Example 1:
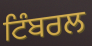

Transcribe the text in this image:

ਟਿੰਬਰਲ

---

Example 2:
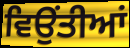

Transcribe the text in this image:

ਵਿਉਂਤੀਆਂ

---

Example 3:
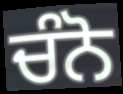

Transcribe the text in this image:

ਚੰਨੋ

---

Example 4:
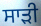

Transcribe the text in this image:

ਸਾੜੀ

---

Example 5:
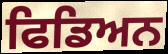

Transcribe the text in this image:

ਫਿਡਿਅਨ